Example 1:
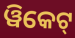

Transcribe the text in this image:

ୱିକେଟ୍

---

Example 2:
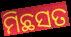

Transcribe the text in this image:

ମିଛସତ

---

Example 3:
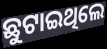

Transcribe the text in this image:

ଛୁଟାଇଥିଲେ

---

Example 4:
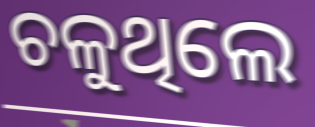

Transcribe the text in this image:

ଚଳୁଥିଲେ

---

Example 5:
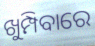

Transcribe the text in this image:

ଖୁମ୍ପିବାରେ